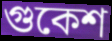
গুকেশ